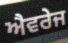
ਐਵਰੇਜ